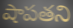
షాపతని